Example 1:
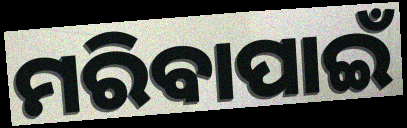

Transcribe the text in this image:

ମରିବାପାଇଁ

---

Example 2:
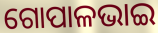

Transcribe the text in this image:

ଗୋପାଳଭାଇ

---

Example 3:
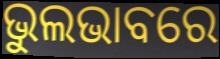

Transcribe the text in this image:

ଭୁଲଭାବରେ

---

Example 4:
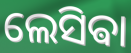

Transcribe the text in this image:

ଲେସିଵା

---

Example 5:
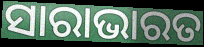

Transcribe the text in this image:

ସାରାଭାରତ